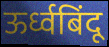
ऊर्ध्वबिंदू